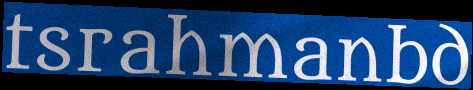
tsrahmanbd